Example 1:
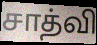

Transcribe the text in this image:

சாத்வி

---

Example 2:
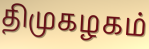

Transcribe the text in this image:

திமுகழகம்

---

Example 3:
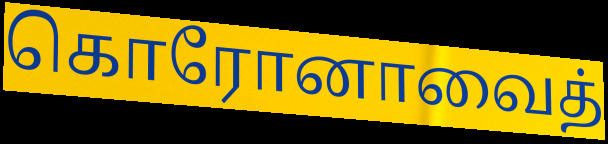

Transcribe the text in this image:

கொரோனாவைத்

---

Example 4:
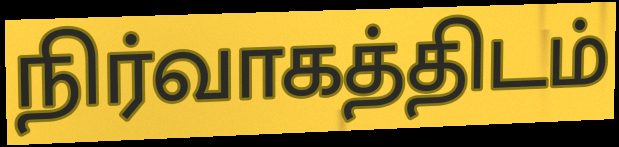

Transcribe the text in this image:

நிர்வாகத்திடம்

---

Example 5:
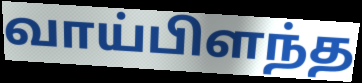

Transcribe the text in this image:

வாய்பிளந்த